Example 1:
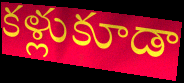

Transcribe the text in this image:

కళ్లుకూడా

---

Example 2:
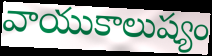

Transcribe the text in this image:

వాయుకాలుష్యం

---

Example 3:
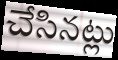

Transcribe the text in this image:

చేసినట్లు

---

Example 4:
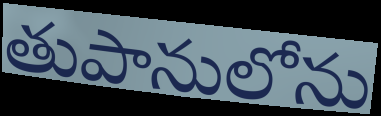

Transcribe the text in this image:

తుపానులోను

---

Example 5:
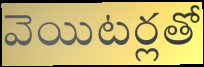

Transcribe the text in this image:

వెయిటర్లతో